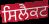
ਸਿਲੈਕਟ